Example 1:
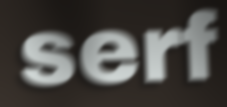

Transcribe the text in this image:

serf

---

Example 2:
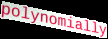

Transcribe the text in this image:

polynomially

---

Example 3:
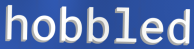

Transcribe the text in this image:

hobbled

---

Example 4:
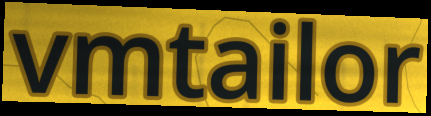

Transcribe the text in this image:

vmtailor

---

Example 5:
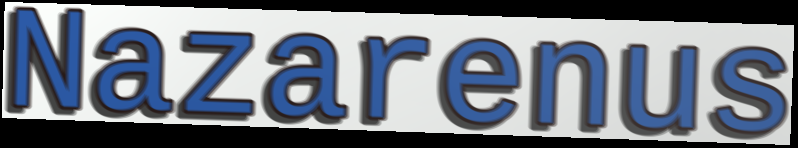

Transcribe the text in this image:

Nazarenus